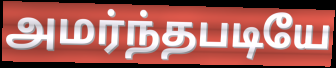
அமர்ந்தபடியே